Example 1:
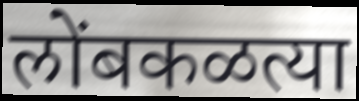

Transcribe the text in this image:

लोंबकळत्या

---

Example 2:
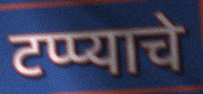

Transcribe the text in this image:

टप्प्याचे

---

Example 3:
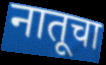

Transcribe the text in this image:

नातूचा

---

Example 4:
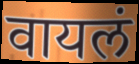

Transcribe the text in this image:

वायलं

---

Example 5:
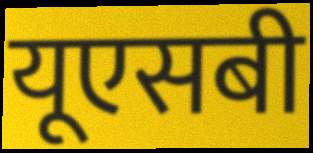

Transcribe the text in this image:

यूएसबी